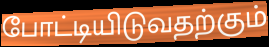
போட்டியிடுவதற்கும்